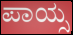
ಪಾಯ್ಸ